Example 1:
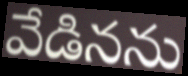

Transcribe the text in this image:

వేడినను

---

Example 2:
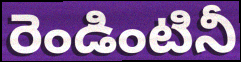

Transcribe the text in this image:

రెండింటినీ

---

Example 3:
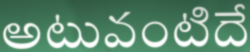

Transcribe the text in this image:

అటువంటిదే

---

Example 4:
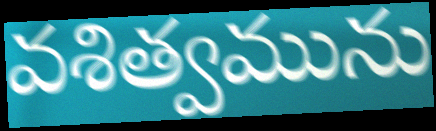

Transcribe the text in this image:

వశిత్వమును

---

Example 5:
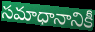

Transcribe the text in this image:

సమాధానానికీ